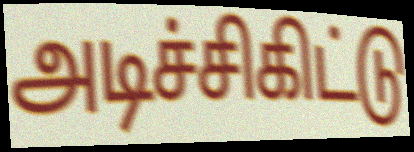
அடிச்சிகிட்டு